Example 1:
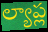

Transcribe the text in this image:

ల్యాప్ల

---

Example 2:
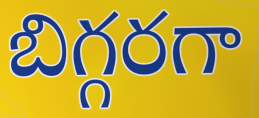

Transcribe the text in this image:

బిగ్గరగా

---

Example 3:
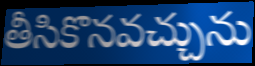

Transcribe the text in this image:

తీసికొనవచ్చును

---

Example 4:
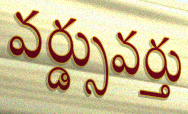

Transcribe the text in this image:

వర్డ్సువర్తు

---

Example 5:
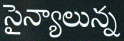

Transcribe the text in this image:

సైన్యాలున్న